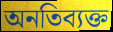
অনতিব্যক্ত